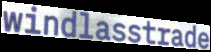
windlasstrade